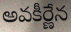
అవకీర్ణేన